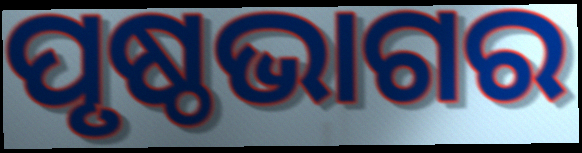
ପୃଷ୍ଠଭାଗର